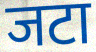
जटा